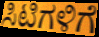
ಸಿಟಿಗಳಿಗೆ